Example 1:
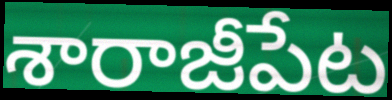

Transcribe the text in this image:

శారాజీపేట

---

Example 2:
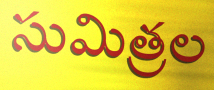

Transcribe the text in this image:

సుమిత్రల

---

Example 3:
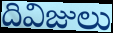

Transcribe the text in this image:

దివిజులు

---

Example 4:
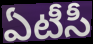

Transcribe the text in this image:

ఏటీసీ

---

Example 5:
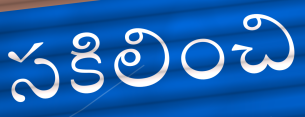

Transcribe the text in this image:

సకిలించి